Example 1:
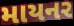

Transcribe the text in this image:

માયનર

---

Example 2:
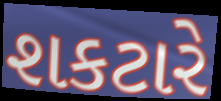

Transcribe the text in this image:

શકટારે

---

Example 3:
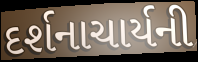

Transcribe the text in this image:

દર્શનાચાર્યની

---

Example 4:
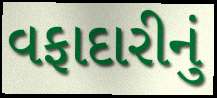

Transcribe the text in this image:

વફાદારીનું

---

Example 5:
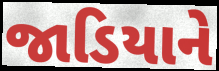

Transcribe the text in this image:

જાડિયાને